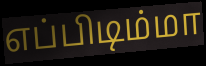
எப்பிடிம்மா